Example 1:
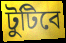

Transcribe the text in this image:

টুটিবে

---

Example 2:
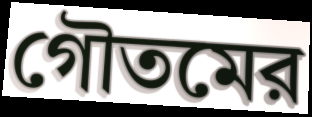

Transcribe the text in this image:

গৌতমের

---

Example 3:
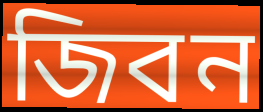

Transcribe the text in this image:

জিবন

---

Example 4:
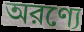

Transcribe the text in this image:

অরণ্যে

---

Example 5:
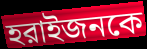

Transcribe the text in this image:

হরাইজনকে